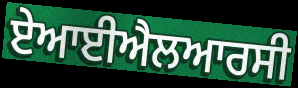
ਏਆਈਐਲਆਰਸੀ